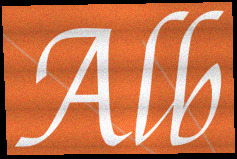
Alb